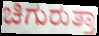
ಚಿಗುರುತ್ತಾ